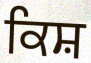
ਕਿਸ਼